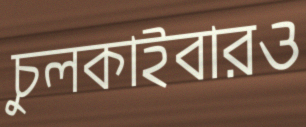
চুলকাইবারও